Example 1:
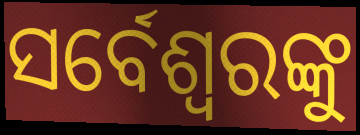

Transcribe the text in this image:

ସର୍ବେଶ୍ୱରଙ୍କୁ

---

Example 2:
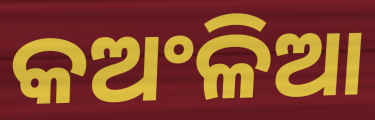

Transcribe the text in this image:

କଅଂଳିଆ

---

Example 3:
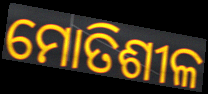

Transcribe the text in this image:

ମୋତିଶୀଳ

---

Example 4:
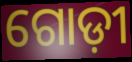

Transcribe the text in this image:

ଗୋଡ଼ୀ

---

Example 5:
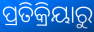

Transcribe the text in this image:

ପ୍ରତିକ୍ରିୟାରୁ